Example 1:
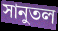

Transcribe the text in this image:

সানুতল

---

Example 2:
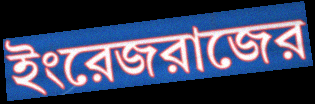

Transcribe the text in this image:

ইংরেজরাজের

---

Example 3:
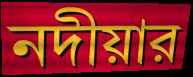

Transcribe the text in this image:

নদীয়ার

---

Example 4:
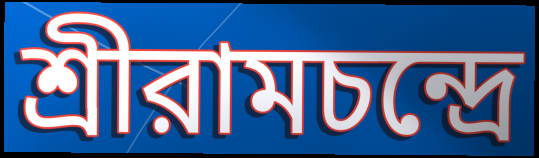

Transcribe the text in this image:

শ্রীরামচন্দ্রে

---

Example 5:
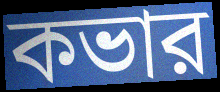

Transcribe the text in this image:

কভার